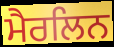
ਮੈਰਲਿਨ